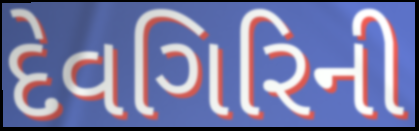
દેવગિરિની